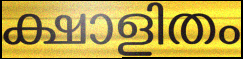
ക്ഷാളിതം